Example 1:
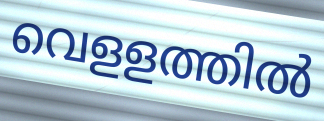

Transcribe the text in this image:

വെളളത്തിൽ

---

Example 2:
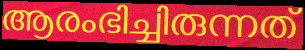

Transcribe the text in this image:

ആരംഭിച്ചിരുന്നത്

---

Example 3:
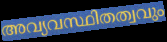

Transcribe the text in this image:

അവ്യവസ്ഥിതത്വവും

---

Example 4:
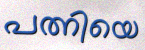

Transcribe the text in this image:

പത്നിയെ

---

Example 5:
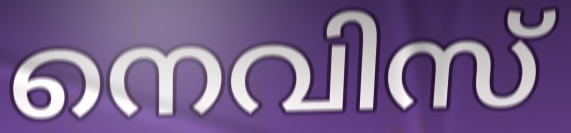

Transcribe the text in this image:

നെവിസ്